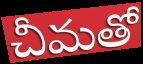
చీమతో